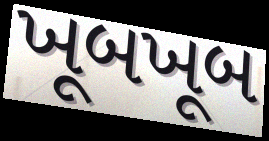
ખૂબખૂબ